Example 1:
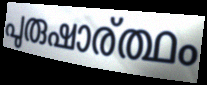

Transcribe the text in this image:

പുരുഷാര്ത്ഥം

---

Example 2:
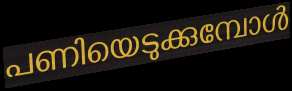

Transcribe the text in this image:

പണിയെടുക്കുമ്പോൾ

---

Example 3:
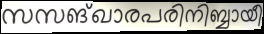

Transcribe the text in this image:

സസങ്ഖാരപരിനിബ്ബായീ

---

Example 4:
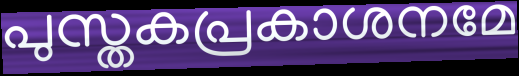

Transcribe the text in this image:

പുസ്തകപ്രകാശനമേ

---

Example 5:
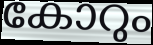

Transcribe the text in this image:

കോറും